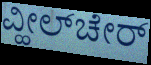
ವ್ಹೀಲ್‌ಚೇರ್